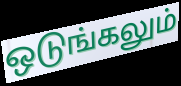
ஒடுங்கலும்